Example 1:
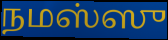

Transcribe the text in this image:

நமஸ்ஸு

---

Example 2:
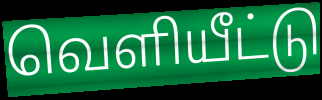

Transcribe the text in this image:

வெளியீட்டு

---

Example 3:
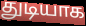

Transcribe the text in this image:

துடியாக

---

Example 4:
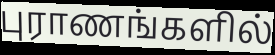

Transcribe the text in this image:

புராணங்களில்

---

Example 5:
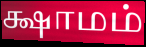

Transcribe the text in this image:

க்ஷாமம்